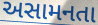
અસામનતા